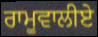
ਰਾਮੂਵਾਲੀਏ